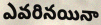
ఎవరినయినా